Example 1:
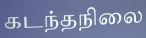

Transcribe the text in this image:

கடந்தநிலை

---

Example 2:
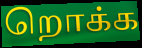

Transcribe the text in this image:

றொக்க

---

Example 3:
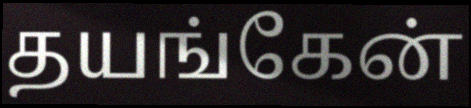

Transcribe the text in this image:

தயங்கேன்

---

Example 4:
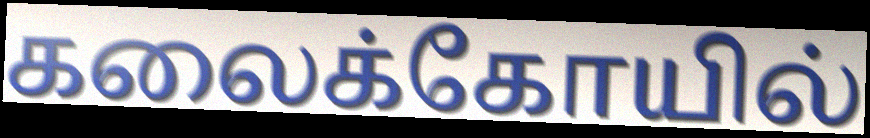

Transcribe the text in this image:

கலைக்கோயில்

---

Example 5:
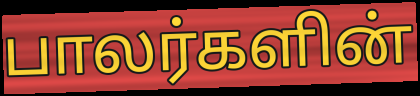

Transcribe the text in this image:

பாலர்களின்